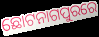
ଛୋଟନାଗପୁରରେ